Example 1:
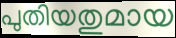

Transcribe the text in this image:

പുതിയതുമായ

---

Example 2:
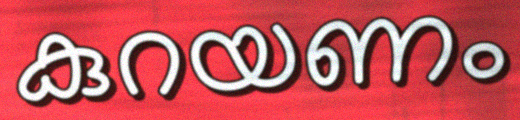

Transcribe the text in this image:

കുറയണം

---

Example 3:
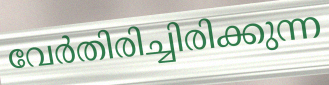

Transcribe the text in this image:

വേർതിരിച്ചിരിക്കുന്ന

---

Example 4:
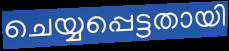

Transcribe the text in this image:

ചെയ്യപ്പെട്ടതായി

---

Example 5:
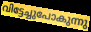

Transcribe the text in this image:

വിട്ടേച്ചുപോകുന്നു